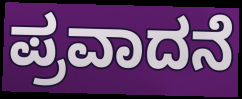
ಪ್ರವಾದನೆ